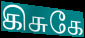
கிசுகே